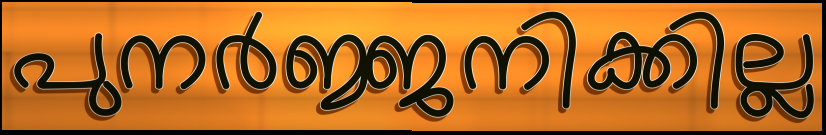
പുനർജ്ജനിക്കില്ല